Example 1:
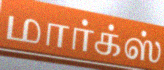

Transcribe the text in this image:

மார்க்ஸ்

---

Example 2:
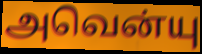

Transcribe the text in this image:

அவென்யு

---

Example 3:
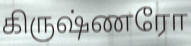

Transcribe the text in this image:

கிருஷ்ணரோ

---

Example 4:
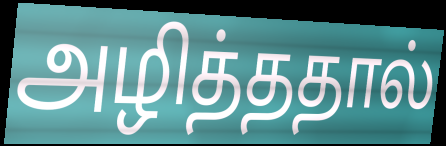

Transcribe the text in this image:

அழித்ததால்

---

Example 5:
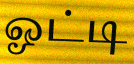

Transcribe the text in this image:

ஓட்டி